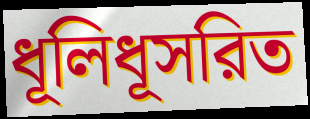
ধূলিধূসরিত